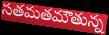
సతమతమౌతున్న